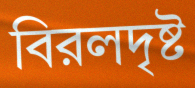
বিরলদৃষ্ট